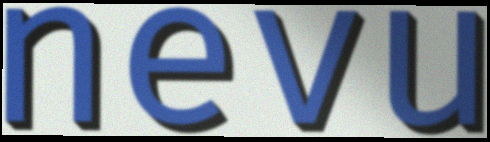
nevu